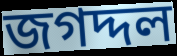
জগদ্দল